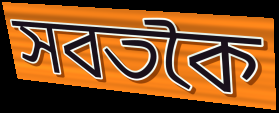
সবতকৈ